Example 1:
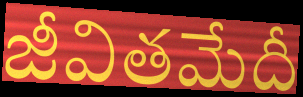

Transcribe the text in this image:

జీవితమేదీ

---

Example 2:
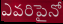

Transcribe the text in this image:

ఎవరిపైనో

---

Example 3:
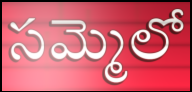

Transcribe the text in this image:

సమ్మెలో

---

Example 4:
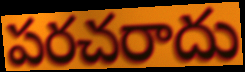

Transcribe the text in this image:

పరచరాదు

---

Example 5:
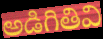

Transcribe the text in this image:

అడిగితివి